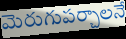
మెరుగుపర్చాలనే